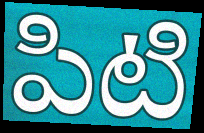
పిటి